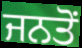
ਜਨਤੋਂ